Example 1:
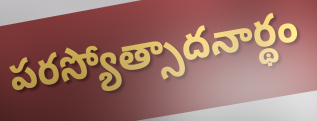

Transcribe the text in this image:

పరస్యోత్సాదనార్థం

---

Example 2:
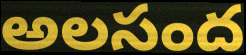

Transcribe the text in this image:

అలసంద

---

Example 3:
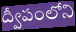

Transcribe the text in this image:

ద్వీపంలోని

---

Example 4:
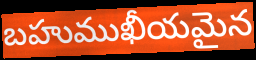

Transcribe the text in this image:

బహుముఖీయమైన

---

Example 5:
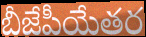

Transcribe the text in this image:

బీజేపీయేతర